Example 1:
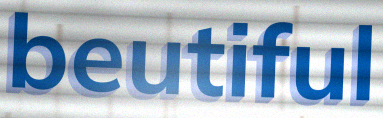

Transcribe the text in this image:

beutiful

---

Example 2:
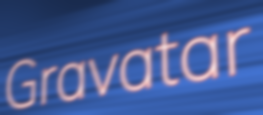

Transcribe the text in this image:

Gravatar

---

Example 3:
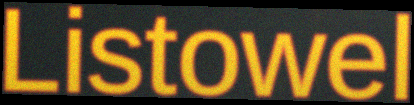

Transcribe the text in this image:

Listowel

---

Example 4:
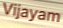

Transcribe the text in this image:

Vijayam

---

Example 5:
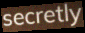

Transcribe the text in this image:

secretly